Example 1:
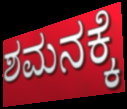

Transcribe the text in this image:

ಶಮನಕ್ಕೆ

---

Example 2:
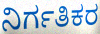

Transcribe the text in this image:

ನಿರ್ಗತಿಕರ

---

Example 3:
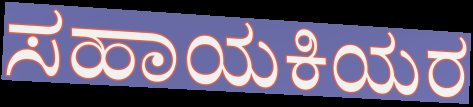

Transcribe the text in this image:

ಸಹಾಯಕಿಯರ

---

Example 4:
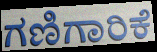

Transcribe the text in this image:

ಗಣಿಗಾರಿಕೆ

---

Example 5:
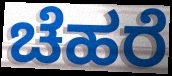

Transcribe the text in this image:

ಚೆಹರೆ